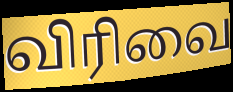
விரிவை